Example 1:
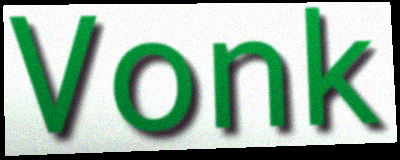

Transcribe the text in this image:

Vonk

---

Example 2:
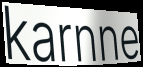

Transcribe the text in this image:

karnne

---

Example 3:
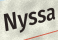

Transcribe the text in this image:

Nyssa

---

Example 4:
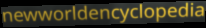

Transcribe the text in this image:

newworldencyclopedia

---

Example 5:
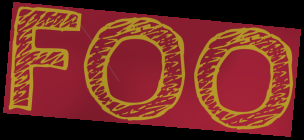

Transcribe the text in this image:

FOO